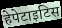
हेपेटाइटिस